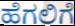
ಹೆಗಲಿಗೆ